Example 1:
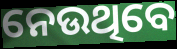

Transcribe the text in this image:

ନେଉଥିବେ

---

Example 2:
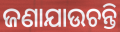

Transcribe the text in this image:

ଜଣାଯାଉଚନ୍ତି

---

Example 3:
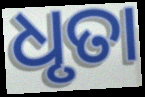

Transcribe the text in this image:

ଧୃତା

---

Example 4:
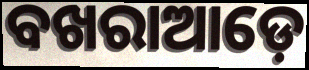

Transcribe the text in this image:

ବଖରାଆଡ଼େ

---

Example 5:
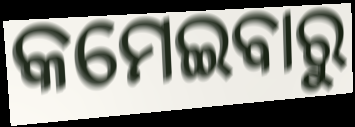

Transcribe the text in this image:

କମେଇବାରୁ